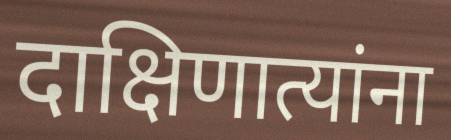
दाक्षिणात्यांना